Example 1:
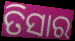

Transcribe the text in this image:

ତିସାର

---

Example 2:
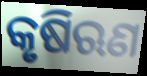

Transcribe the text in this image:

କୃଷିଋଣ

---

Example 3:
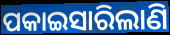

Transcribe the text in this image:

ପକାଇସାରିଲାଣି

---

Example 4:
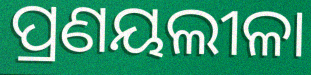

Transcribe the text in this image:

ପ୍ରଣୟଲୀଳା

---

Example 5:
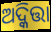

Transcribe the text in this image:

ଅଦ୍କିତ୍ତା